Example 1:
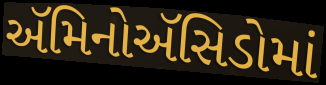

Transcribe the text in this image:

ઍમિનોઍસિડોમાં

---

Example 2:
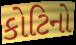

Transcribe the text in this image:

કોટિનો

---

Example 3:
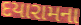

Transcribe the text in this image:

દયારામના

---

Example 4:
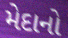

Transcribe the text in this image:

મેદાનો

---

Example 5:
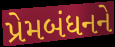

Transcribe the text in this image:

પ્રેમબંધનને